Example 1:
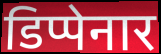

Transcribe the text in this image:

डिप्पेनार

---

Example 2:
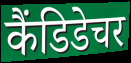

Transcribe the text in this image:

कैंडिडेचर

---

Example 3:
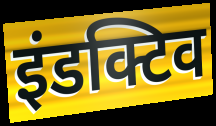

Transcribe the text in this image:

इंडक्टिव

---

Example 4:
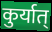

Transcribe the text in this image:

कुर्यात्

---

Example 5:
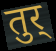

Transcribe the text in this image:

तुर्